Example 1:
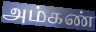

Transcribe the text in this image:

அம்கண்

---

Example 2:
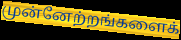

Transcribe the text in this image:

முன்னேற்றங்களைக்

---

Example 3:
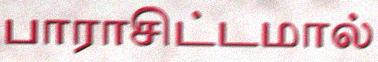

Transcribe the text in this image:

பாராசிட்டமால்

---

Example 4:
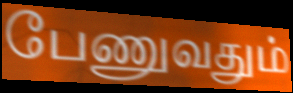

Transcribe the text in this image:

பேணுவதும்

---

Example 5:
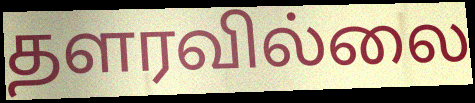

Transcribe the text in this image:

தளரவில்லை